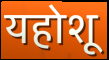
यहोशू